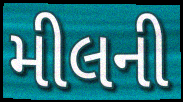
મીલની